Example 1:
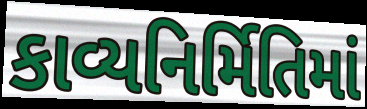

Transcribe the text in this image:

કાવ્યનિર્મિતિમાં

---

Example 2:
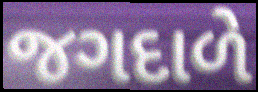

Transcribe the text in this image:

જગદાળે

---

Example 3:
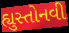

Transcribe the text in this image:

હ્યુસ્તોનવી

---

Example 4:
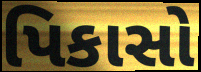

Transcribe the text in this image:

પિકાસો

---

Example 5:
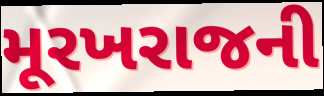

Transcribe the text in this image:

મૂરખરાજની